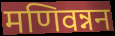
मणिवन्नन